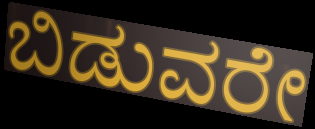
ಬಿಡುವರೇ